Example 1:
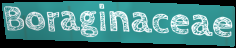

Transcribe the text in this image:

Boraginaceae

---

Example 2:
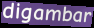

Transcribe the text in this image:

digambar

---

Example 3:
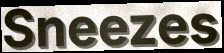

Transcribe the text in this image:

Sneezes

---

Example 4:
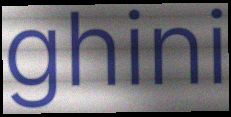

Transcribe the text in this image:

ghini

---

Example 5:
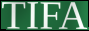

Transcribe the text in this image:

TIFA